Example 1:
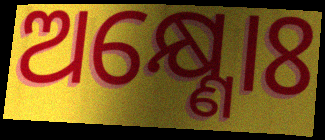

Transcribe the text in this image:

ଅକ୍ଷ୍ଣୋଃ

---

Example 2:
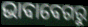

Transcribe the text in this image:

ଭାବାବେଗରୁ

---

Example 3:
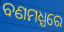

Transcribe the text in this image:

ବଣମଧ୍ଯରେ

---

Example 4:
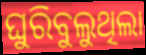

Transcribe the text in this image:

ଘୁରିବୁଲୁଥିଲା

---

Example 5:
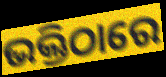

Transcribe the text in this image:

ଭକ୍ତିଠାରେ